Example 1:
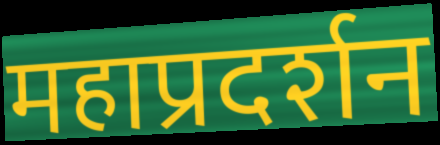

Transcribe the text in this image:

महाप्रदर्शन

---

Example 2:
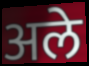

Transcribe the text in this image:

अले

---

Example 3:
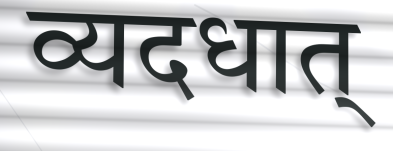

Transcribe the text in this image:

व्यदधात्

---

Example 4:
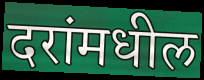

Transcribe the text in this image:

दरांमधील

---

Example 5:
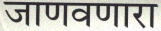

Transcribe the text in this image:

जाणवणारा